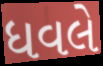
ધવલે